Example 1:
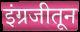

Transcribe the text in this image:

इंग्रजीतून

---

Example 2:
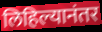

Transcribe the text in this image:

लिहिल्यानंतर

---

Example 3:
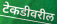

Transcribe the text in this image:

टेकडीवरील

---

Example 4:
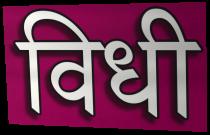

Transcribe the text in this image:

विधी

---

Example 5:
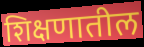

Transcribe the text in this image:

शिक्षणातील